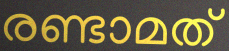
രണ്ടാമത്